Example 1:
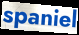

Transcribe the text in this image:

spaniel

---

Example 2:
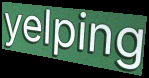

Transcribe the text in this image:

yelping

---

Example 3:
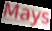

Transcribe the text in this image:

Mays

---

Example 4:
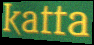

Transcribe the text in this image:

katta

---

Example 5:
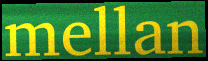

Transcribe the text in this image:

mellan